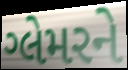
ગ્લેમરને